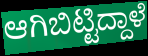
ಆಗಿಬಿಟ್ಟಿದ್ದಾಳೆ